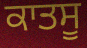
ਕਾਤਸੂ